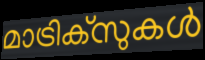
മാട്രിക്സുകൾ